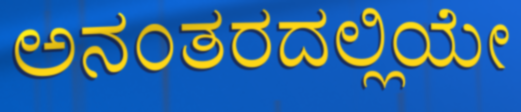
ಅನಂತರದಲ್ಲಿಯೇ